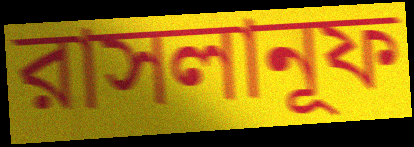
রাসলানূফ